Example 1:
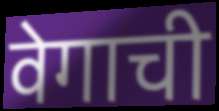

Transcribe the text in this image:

वेगाची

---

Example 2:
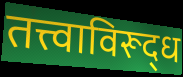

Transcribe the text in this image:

तत्त्वाविरूद्ध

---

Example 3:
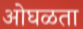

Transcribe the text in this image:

ओघळता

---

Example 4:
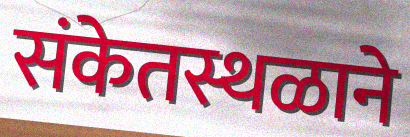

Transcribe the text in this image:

संकेतस्थळाने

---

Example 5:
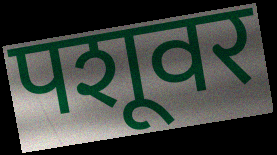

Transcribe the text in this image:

पशूवर